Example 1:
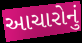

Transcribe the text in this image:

આચારોનું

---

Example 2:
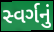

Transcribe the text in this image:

સ્વર્ગનું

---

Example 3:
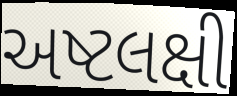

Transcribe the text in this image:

અષ્ટલક્ષી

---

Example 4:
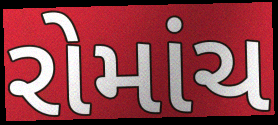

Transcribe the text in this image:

રોમાંચ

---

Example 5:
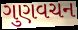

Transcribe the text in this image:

ગુણવચન